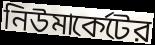
নিউমার্কেটের